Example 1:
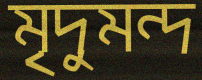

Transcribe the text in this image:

মৃদুমন্দ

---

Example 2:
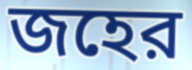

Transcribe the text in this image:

জহের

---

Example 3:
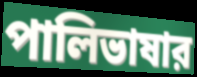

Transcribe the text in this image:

পালিভাষার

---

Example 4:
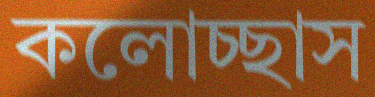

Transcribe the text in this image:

কলোচ্ছাস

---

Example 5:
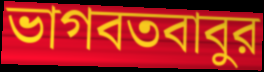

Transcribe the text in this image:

ভাগবতবাবুর